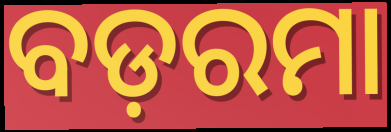
ବଡ଼ରମା